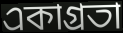
একাগ্রতা